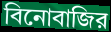
বিনোবাজির